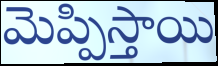
మెప్పిస్తాయి